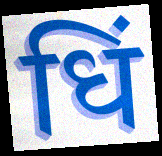
धिं